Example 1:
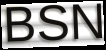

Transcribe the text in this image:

BSN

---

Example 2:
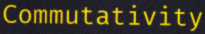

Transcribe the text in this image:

Commutativity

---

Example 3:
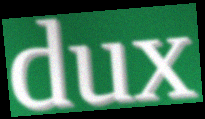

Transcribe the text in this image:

dux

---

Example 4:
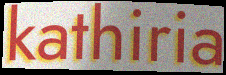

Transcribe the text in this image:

kathiria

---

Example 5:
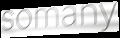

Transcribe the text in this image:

somany